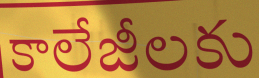
కాలేజీలకు